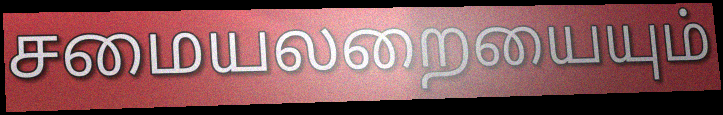
சமையலறையையும்